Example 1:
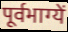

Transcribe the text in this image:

पूर्वभाग्यें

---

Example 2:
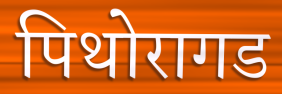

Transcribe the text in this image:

पिथोरागड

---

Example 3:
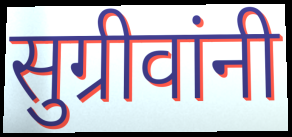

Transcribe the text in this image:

सुग्रीवांनी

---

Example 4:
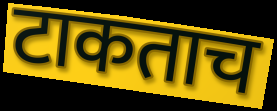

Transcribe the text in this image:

टाकताच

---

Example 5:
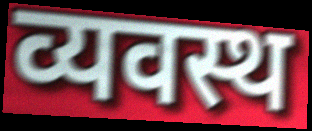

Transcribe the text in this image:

व्यवस्थ